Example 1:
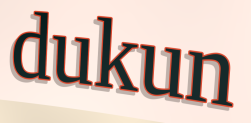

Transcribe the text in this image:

dukun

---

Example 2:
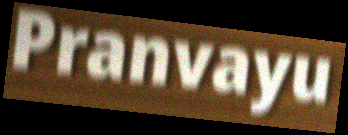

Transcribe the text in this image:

Pranvayu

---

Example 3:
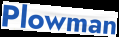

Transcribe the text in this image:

Plowman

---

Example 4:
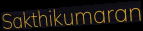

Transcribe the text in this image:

Sakthikumaran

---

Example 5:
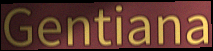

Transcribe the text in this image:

Gentiana